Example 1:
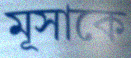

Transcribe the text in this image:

মূসাকে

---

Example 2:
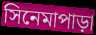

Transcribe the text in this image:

সিনেমাপাড়া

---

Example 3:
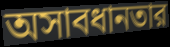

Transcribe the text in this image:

অসাবধানতার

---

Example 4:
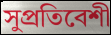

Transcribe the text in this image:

সুপ্রতিবেশী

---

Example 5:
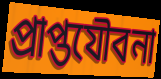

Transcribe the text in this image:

প্রাপ্তযৌবনা